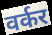
वर्कर